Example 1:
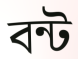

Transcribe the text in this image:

বন্ট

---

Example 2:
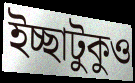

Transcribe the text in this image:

ইচ্ছাটুকুও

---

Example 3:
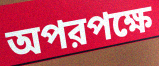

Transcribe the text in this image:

অপরপক্ষে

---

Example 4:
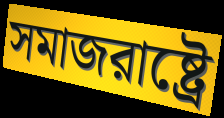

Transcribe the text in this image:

সমাজরাষ্ট্রে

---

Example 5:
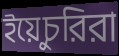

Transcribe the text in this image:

ইয়েচুরিরা